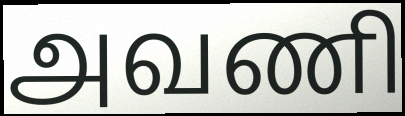
அவணி